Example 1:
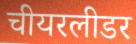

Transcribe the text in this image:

चीयरलीडर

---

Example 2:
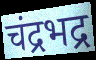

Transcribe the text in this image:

चंद्रभद्र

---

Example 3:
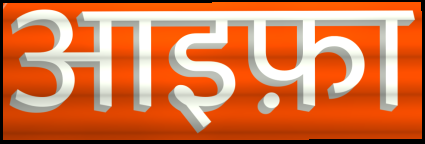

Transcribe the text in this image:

आइफ़ा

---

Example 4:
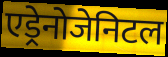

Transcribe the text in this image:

एड्रेनोजेनिटल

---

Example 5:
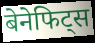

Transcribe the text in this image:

बेनेफिट्स